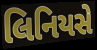
લિનિયસે